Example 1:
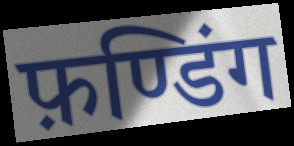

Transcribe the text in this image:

फ़ण्डिंग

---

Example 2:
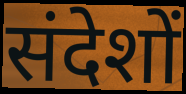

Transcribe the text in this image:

संदेशों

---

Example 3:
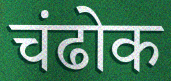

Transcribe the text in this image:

चंढोक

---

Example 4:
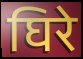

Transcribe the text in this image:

घिरे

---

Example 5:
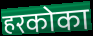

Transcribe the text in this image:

हरकोका